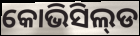
କୋଭିସିଲ୍‌ଡ